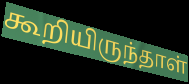
கூறியிருந்தாள்